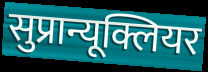
सुप्रान्यूक्लियर